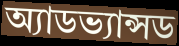
অ্যাডভ্যান্সড